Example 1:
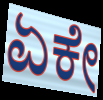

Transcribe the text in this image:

ಏಕೇ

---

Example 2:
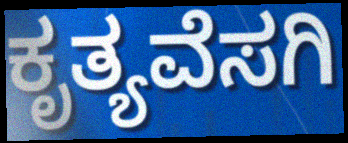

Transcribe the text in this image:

ಕೃತ್ಯವೆಸಗಿ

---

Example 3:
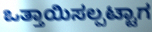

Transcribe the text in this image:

ಒತ್ತಾಯಿಸಲ್ಪಟ್ಟಾಗ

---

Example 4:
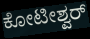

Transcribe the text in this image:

ಕೋಟೀಶ್ವರ್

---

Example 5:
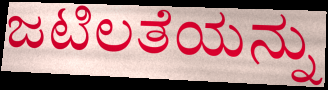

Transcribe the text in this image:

ಜಟಿಲತೆಯನ್ನು